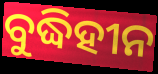
ବୁଦ୍ଧିହୀନ